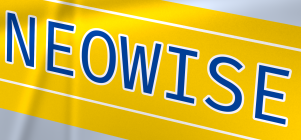
NEOWISE